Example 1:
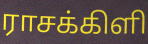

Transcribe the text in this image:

ராசக்கிளி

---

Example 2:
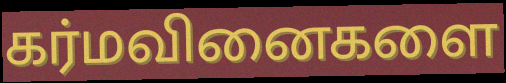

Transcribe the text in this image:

கர்மவினைகளை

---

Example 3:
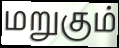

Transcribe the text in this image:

மறுகும்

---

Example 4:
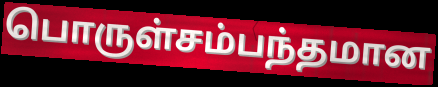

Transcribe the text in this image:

பொருள்சம்பந்தமான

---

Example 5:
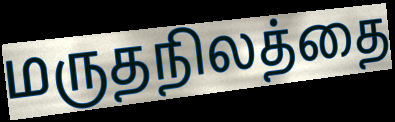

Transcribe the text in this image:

மருதநிலத்தை